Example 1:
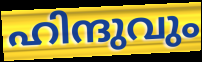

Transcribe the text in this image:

ഹിന്ദുവും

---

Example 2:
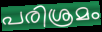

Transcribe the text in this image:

പരിശ്രമം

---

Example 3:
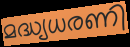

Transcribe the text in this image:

മദ്ധ്യധരണി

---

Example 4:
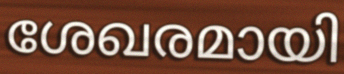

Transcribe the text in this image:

ശേഖരമായി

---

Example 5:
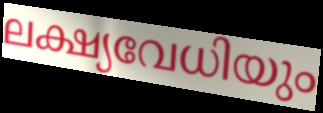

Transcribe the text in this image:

ലക്ഷ്യവേധിയും